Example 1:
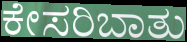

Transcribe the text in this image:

ಕೇಸರಿಬಾತು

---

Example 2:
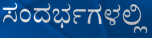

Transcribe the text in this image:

ಸಂದರ್ಭಗಳಲ್ಲಿ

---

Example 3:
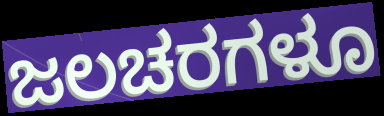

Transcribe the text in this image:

ಜಲಚರಗಳೂ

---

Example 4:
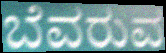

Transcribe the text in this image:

ಬೆವರುವ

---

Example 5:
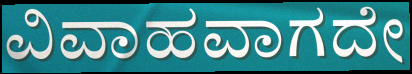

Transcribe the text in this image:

ವಿವಾಹವಾಗದೇ